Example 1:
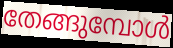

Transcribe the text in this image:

തേങ്ങുമ്പോൾ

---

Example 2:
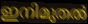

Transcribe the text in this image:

ഇനിമുതൽ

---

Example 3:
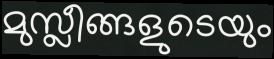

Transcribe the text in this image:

മുസ്ലീങ്ങളുടെയും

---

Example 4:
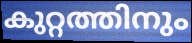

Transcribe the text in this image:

കുറ്റത്തിനും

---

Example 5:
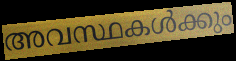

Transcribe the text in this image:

അവസ്ഥകൾക്കും